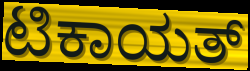
ಟಿಕಾಯತ್